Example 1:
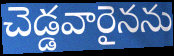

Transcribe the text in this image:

చెడ్డవారైనను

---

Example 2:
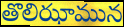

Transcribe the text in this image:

తొలిఝామున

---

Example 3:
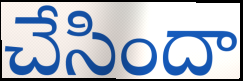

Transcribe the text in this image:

చేసిందా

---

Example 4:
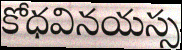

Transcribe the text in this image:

కోధవినయస్స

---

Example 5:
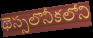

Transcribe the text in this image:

థెస్సలొనీకలోని